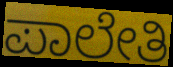
ಪಾಲೇತಿ